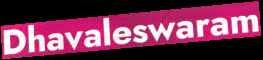
Dhavaleswaram